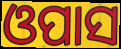
ଓପାସ